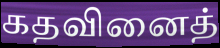
கதவினைத்